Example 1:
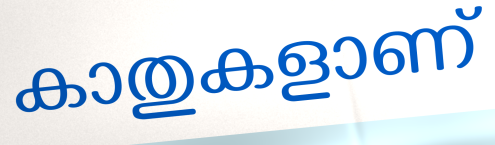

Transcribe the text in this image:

കാതുകളാണ്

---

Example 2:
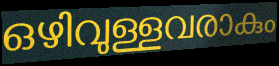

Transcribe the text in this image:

ഒഴിവുള്ളവരാകും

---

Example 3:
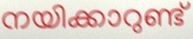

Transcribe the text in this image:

നയിക്കാറുണ്ട്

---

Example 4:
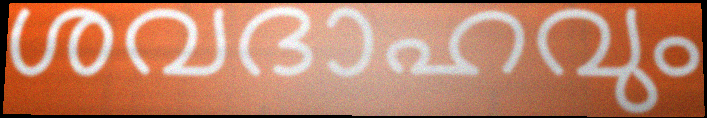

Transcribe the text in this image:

ശവദാഹവും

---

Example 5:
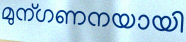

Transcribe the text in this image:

മുന്ഗണനയായി